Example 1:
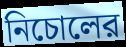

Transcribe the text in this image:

নিচোলের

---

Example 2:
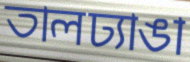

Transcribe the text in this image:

তালঢ্যাঙা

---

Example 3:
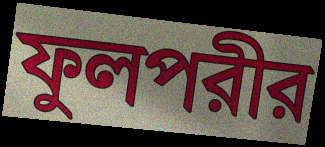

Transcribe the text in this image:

ফুলপরীর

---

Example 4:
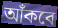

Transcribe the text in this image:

আঁকবে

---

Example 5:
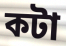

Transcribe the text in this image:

কটা